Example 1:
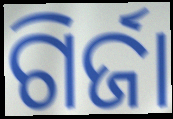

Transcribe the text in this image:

ଗିର୍ଜା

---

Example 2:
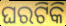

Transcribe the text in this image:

ଘରଟିକି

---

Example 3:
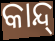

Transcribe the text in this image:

କାନ୍ଦ୍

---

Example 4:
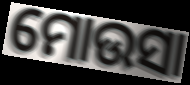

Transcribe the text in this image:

ମୋଉସା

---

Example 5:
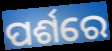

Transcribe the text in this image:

ପର୍ଶରେ